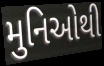
મુનિઓથી